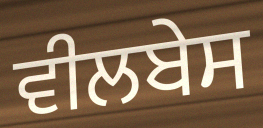
ਵੀਲਬੇਸ